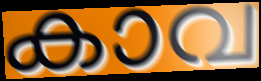
കാവ